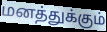
மனத்துக்கும்